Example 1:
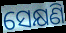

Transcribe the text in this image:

ସେକ୍ଷଣି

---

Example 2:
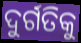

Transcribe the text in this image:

ଦୁର୍ଗତିକୁ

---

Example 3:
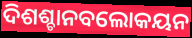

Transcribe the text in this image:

ଦିଶଶ୍ଚାନବଲୋକୟନ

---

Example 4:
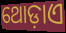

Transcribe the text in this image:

ଥୋଡ଼ାଏ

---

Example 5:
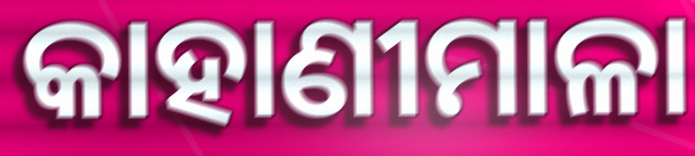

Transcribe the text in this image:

କାହାଣୀମାଳା